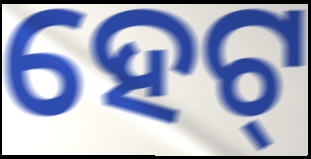
ହେଟ୍